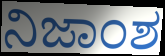
ನಿಜಾಂಶ